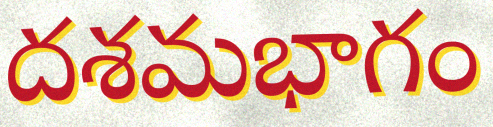
దశమభాగం